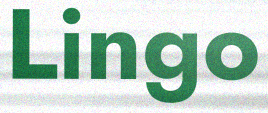
Lingo